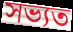
সভ্যত